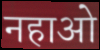
नहाओ